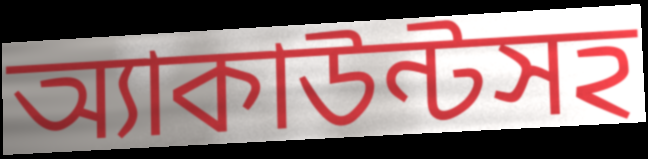
অ্যাকাউন্টসহ